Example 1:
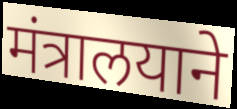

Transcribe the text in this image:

मंत्रालयाने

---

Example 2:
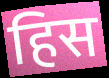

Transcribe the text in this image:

हिस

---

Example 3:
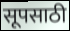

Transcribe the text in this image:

सूपसाठी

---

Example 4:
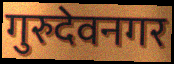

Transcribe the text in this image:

गुरुदेवनगर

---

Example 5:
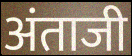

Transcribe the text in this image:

अंताजी